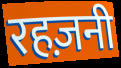
रहज़नी